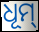
ଧୂମ୍